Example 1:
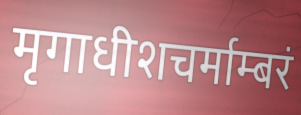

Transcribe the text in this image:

मृगाधीशचर्माम्बरं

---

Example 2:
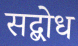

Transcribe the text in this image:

सद्बोध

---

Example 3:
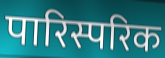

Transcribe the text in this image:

पारिस्परिक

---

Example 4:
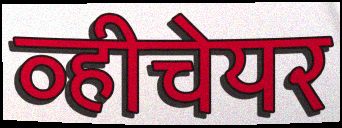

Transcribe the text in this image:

व्हीचेयर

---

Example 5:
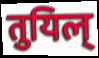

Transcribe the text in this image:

तुयिल्